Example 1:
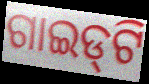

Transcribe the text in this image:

ଗାଇଡ୍‌ଟି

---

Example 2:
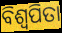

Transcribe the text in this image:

ବିଶ୍ୱପିତା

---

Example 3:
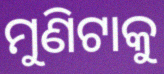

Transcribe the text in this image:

ମୁଣିଟାକୁ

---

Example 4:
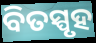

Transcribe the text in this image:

ବିତସ୍ପୃହ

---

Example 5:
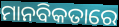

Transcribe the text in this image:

ମାନବିକତାରେ